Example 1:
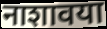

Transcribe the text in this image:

नाशावया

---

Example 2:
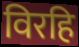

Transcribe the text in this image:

विरहि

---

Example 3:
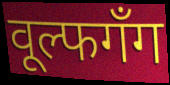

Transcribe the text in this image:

वूल्फगँग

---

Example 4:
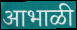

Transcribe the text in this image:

आभाळी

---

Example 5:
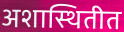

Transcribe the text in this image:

अशास्थितीत